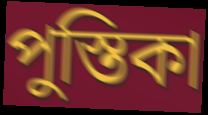
পুস্তিকা